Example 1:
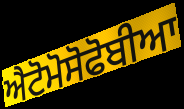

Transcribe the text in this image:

ਐਟੋਮੋਸੋਫੋਬੀਆ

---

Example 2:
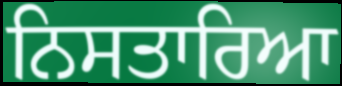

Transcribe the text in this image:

ਨਿਸਤਾਰਿਆ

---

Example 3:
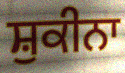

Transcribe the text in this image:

ਸ਼ੁਕੀਨਾ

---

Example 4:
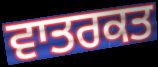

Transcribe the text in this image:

ਵਾਤਰਕਤ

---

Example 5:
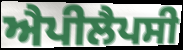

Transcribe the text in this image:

ਐਪੀਲੈਪਸੀ